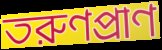
তরুণপ্রাণ